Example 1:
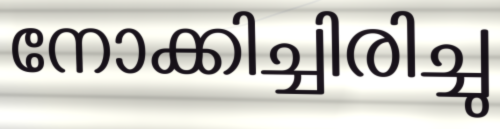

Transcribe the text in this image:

നോക്കിച്ചിരിച്ചു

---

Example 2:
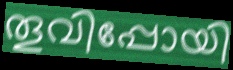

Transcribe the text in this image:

തൂവിപ്പോയി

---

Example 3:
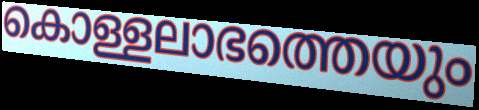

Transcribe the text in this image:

കൊള്ളലാഭത്തെയും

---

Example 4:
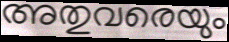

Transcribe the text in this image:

അതുവരെയും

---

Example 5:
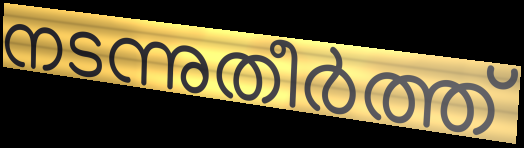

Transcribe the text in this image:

നടന്നുതീർത്ത്